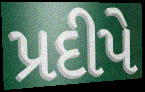
પ્રદીપે